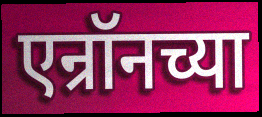
एन्रॉनच्या